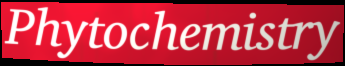
Phytochemistry